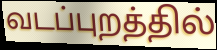
வடப்புறத்தில்